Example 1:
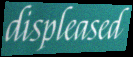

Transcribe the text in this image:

displeased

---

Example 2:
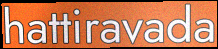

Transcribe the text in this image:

hattiravada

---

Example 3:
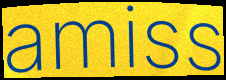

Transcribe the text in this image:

amiss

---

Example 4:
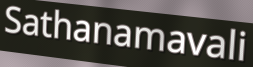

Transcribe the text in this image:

Sathanamavali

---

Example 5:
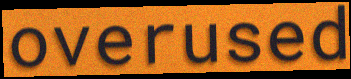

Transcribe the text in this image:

overused